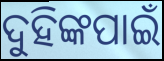
ଦୁହିଙ୍କପାଇଁ